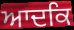
ਆਦਕਿ